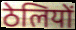
ठेलियों